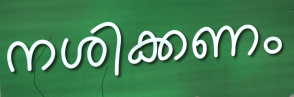
നശിക്കണം